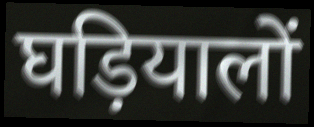
घड़ियालों